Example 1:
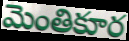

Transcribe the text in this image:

మెంతికూర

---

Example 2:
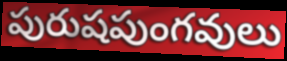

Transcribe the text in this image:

పురుషపుంగవులు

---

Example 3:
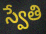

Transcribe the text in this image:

స్వేతి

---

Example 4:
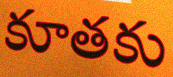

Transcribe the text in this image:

కూతకు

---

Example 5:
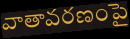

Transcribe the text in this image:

వాతావరణంపై